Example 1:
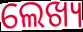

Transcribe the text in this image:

ଲେଖ୍ୟ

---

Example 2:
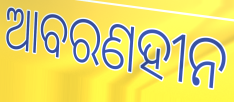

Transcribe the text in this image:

ଆବରଣହୀନ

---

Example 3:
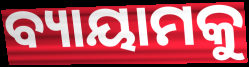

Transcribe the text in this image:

ବ୍ୟାୟାମକୁ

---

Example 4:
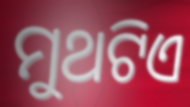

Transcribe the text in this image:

ମୁଥଟିଏ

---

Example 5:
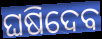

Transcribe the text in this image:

ଘଷିଦେବ